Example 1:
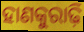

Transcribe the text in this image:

ହାଣକୁରାଢ଼ି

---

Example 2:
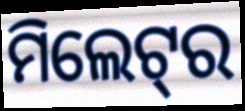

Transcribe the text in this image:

ମିଲେଟ୍‌ର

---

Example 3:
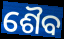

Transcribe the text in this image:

ଶୈବ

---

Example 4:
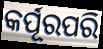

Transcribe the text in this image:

କର୍ପୂରପରି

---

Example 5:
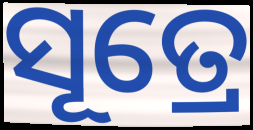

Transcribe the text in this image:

ସୂତ୍ରେ